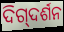
ଦିଗ୍‍ଦର୍ଶନ